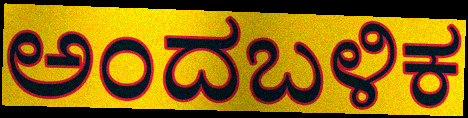
ಅಂದಬಳಿಕ